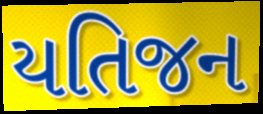
યતિજન